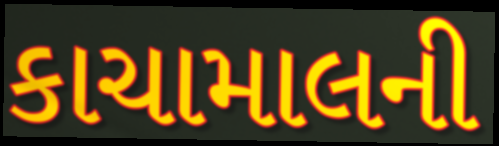
કાચામાલની